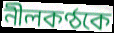
নীলকণ্ঠকে